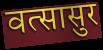
वत्सासुर